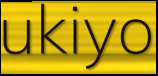
ukiyo